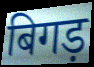
बिगड़